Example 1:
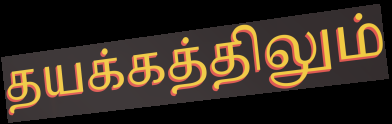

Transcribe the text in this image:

தயக்கத்திலும்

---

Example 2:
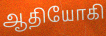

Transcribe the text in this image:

ஆதியோகி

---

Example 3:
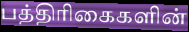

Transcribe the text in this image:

பத்திரிகைகளின்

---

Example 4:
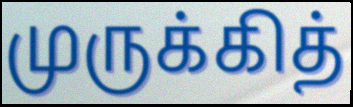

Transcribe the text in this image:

முருக்கித்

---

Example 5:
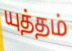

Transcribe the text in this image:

யுத்தம்